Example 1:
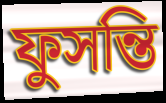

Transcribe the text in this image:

ফুসন্তি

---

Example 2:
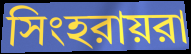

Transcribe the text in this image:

সিংহরায়রা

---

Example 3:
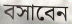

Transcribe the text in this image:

বসাবেন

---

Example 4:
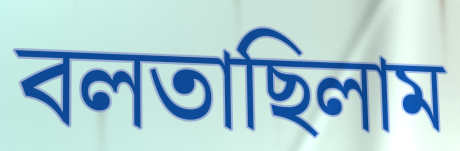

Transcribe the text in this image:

বলতাছিলাম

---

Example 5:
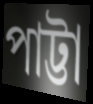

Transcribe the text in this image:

পাট্টা